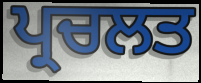
ਪ੍ਰਚਲਤ